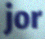
jor